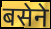
बसेने